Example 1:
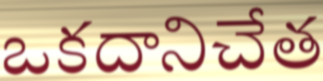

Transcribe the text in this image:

ఒకదానిచేత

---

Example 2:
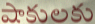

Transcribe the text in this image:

షాకులకు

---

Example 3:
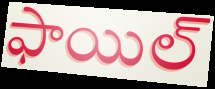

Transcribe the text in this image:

ఫాయిల్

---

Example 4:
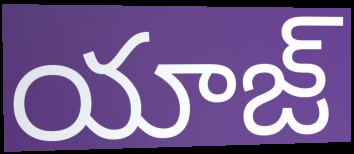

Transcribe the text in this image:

యాజ్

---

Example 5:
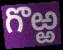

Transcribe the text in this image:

గొఱ్ఱ